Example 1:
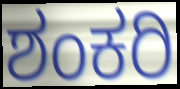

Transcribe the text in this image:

ಶಂಕರಿ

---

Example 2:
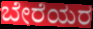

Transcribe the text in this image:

ಬೇರೆಯರ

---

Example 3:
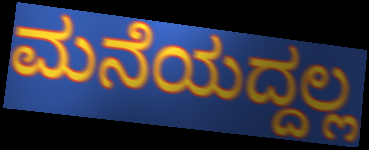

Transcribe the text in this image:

ಮನೆಯದ್ದಲ್ಲ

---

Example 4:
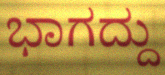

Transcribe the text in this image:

ಭಾಗದ್ದು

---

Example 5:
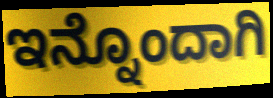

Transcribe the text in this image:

ಇನ್ನೊಂದಾಗಿ